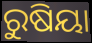
ରୁଷିୟା